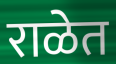
राळेत